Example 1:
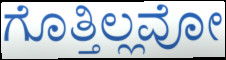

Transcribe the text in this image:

ಗೊತ್ತಿಲ್ಲವೋ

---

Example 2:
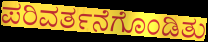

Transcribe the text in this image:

ಪರಿವರ್ತನೆಗೊಂಡಿತು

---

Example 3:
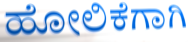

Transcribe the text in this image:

ಹೋಲಿಕೆಗಾಗಿ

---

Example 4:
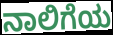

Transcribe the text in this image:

ನಾಲಿಗೆಯ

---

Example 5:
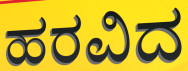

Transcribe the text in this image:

ಹರವಿದ